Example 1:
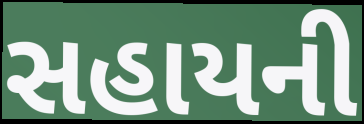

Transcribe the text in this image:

સહાયની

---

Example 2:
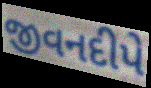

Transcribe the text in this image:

જીવનદીપે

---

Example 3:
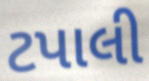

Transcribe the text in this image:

ટપાલી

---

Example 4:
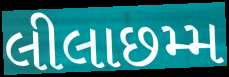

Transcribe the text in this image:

લીલાછમ્મ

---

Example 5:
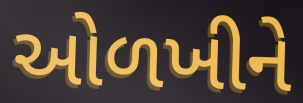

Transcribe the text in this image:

ઓળખીને